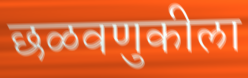
छळवणुकीला